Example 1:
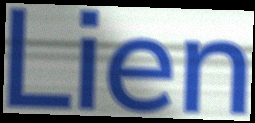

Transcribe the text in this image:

Lien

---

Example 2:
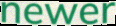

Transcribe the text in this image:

newer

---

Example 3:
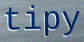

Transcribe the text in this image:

tipy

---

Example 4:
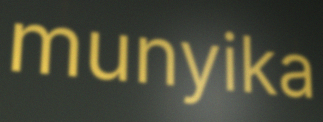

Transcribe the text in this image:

munyika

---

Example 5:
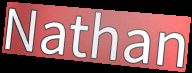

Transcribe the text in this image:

Nathan